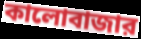
কালোবাজার